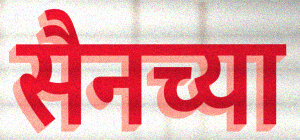
सैनच्या